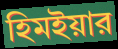
হিমইয়ার